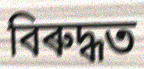
বিৰুদ্ধত